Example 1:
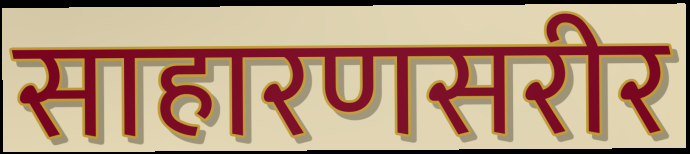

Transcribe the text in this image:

साहारणसरीर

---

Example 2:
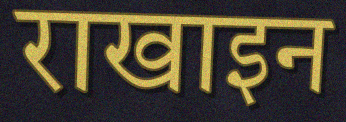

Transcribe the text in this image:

राखाइन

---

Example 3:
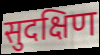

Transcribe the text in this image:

सुदक्षिण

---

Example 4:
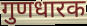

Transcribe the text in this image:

गुणधारक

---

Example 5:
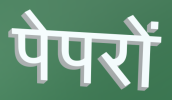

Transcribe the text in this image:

पेपरों